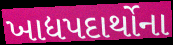
ખાદ્યપદાર્થોના